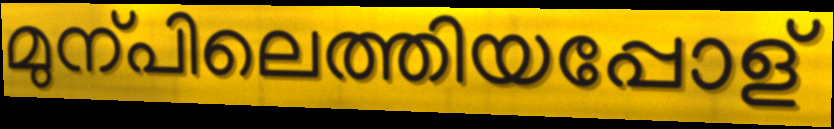
മുന്പിലെത്തിയപ്പോള്